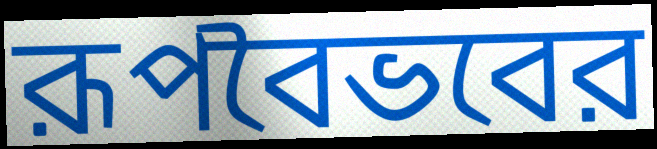
রূপবৈভবের